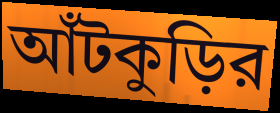
আঁটকুড়ির